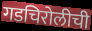
गडचिरोलीची